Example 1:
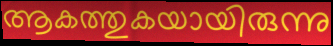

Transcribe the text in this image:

ആകത്തുകയായിരുന്നു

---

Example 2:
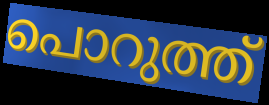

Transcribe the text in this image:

പൊറുത്ത്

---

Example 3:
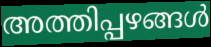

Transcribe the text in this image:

അത്തിപ്പഴങ്ങൾ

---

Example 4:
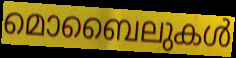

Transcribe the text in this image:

മൊബൈലുകൾ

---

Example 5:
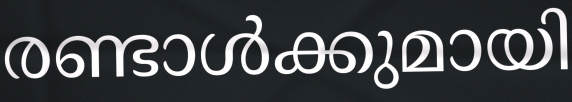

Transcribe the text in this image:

രണ്ടാൾക്കുമായി